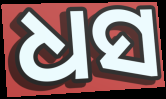
ଧସ